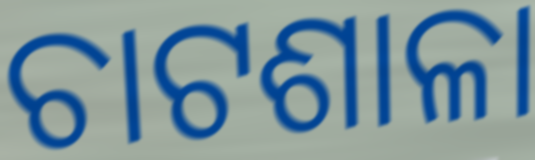
ଚାଟଶାଳା